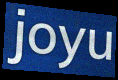
joyu